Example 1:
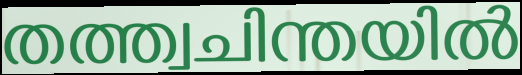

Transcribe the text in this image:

തത്ത്വചിന്തയിൽ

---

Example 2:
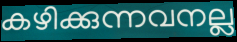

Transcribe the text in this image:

കഴിക്കുന്നവനല്ല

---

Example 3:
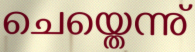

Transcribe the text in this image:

ചെയ്തെന്നു്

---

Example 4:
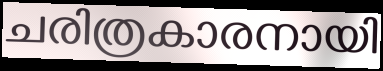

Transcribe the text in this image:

ചരിത്രകാരനായി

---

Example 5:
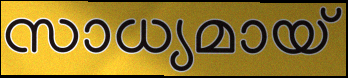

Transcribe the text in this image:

സാധ്യമായ്